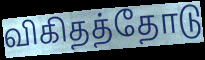
விகிதத்தோடு